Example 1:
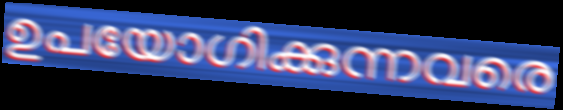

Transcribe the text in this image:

ഉപയോഗിക്കുന്നവരെ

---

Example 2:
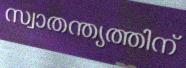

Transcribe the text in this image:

സ്വാതന്ത്യത്തിന്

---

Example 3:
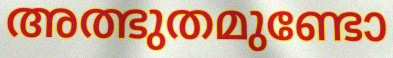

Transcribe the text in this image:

അത്ഭുതമുണ്ടോ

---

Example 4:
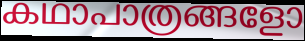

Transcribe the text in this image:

കഥാപാത്രങ്ങളോ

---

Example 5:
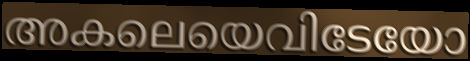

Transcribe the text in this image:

അകലെയെവിടേയോ